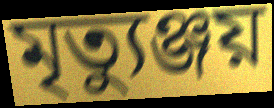
মৃত্যুঞ্জয়